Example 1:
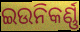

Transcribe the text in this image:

ଇଉନିକର୍ଣ୍ଣ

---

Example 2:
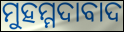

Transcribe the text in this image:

ମୁହମ୍ମଦାବାଦ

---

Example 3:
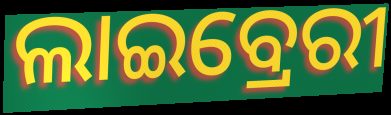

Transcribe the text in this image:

ଲାଇବ୍ରେରୀ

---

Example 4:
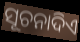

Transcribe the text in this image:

ସୂଚନାଦିଏ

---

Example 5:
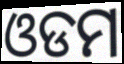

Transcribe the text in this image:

ଓଡମ